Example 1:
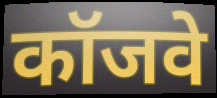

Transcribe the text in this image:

कॉजवे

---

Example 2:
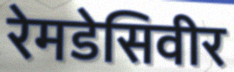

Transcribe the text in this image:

रेमडेसिवीर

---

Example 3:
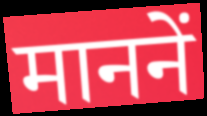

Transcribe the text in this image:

माननें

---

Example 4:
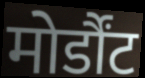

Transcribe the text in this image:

मोर्डौंट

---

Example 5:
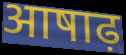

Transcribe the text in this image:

आषाढ़